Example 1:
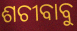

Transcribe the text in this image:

ଶଚୀବାବୁ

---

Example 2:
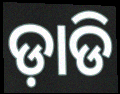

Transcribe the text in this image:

ଡ଼ାଡି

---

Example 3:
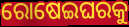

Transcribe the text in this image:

ରୋଷେଇଘରକୁ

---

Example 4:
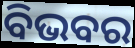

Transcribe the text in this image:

ବିଭବର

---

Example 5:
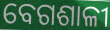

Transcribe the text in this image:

ବେଗଶାଳୀ